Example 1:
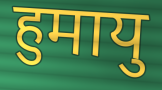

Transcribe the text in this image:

हुमायु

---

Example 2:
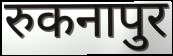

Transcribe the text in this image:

रुकनापुर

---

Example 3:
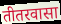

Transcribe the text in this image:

तीतरवासा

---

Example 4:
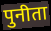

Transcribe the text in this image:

पुनीता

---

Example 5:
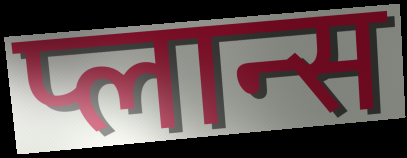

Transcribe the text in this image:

प्लान्स